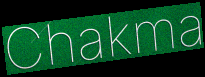
Chakma